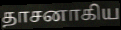
தாசனாகிய